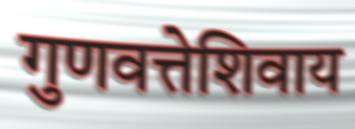
गुणवत्तेशिवाय